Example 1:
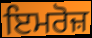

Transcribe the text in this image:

ਇਮਰੋਜ਼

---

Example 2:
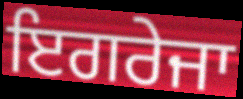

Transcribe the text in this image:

ਇਗਰੇਜਾ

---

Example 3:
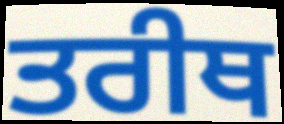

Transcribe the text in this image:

ਤਰੀਥ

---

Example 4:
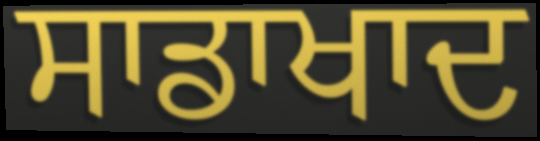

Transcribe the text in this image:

ਸਾਡਾਖਾਦ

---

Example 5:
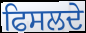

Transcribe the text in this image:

ਫਿਸਲਦੇ